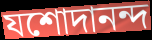
যশোদানন্দ